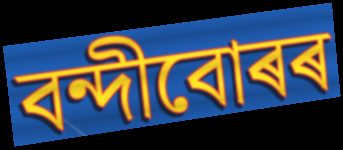
বন্দীবোৰৰ